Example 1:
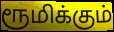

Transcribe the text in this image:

ரூமிக்கும்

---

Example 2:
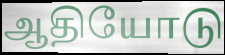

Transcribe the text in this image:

ஆதியோடு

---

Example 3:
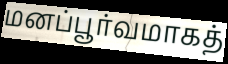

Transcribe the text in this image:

மனப்பூர்வமாகத்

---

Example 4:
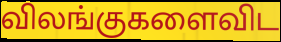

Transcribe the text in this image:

விலங்குகளைவிட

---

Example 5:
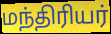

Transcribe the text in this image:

மந்திரியர்